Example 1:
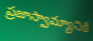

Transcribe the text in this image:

ప్రజాస్వామ్యానికి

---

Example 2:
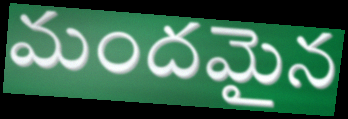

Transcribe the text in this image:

మందమైన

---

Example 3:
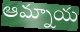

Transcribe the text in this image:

ఆమ్నాయ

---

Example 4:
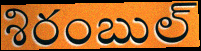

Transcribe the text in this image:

శిరంబుల్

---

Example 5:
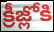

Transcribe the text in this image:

క్రీజ్లోకి